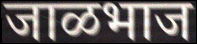
जाळभाज